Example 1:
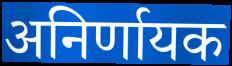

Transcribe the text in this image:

अनिर्णायक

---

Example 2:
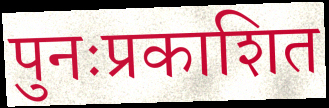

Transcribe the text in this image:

पुनःप्रकाशित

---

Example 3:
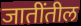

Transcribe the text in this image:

जातींतील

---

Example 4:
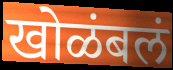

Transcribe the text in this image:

खोळंबलं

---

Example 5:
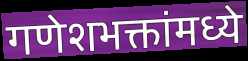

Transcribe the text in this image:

गणेशभक्तांमध्ये